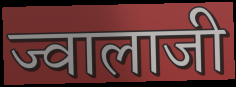
ज्वालाजी